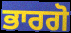
ਭਾਰਗੋ